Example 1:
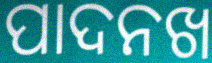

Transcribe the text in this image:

ପାଦନଖ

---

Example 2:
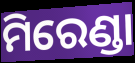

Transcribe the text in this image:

ମିରେଣ୍ଡା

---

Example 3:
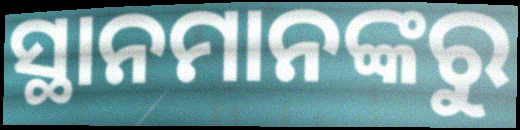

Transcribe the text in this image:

ସ୍ଥାନମାନଙ୍କରୁ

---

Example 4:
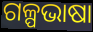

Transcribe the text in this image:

ଗଳ୍ପଭାଷା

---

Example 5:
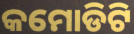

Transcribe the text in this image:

କମୋଡିଟି